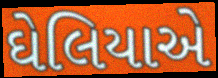
ઘેલિયાએ